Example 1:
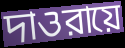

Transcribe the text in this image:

দাওরায়ে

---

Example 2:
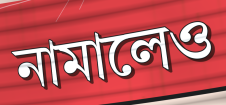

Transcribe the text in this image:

নামালেও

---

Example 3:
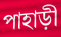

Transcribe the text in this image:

পাহাড়ী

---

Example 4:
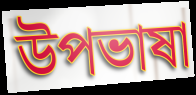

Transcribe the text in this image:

উপভাষা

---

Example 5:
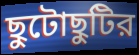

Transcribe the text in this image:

ছুটোছুটির